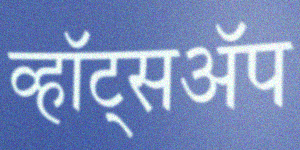
व्हॉट्सॲप